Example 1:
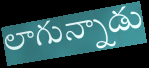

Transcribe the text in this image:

లాగున్నాడు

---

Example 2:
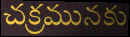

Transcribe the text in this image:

చక్రమునకు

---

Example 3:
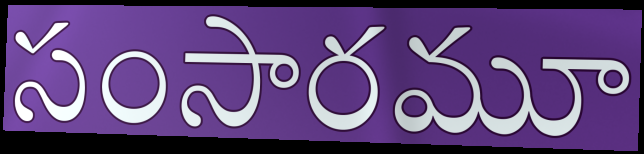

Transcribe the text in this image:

సంసారమూ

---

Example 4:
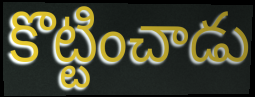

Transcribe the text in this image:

కొట్టించాడు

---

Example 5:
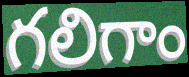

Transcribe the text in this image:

గలిగాం